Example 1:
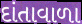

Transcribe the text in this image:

દાંતાવાળા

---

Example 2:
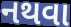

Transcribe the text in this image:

નથવા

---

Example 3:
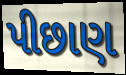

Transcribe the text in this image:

પીછાણ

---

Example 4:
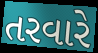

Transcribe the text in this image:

તરવારે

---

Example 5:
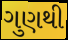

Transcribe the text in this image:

ગુણથી